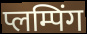
प्लम्पिंग